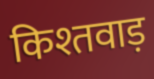
किश्तवाड़